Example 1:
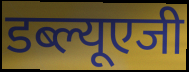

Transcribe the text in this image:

डब्ल्यूएजी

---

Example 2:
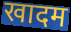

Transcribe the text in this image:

खादम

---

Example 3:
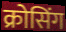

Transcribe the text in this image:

क्रोसिंग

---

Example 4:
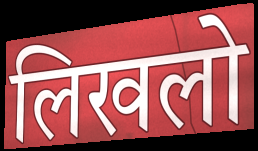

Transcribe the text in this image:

लिखलो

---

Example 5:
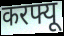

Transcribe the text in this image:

करफ्यू